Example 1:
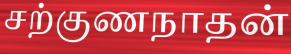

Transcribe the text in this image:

சற்குணநாதன்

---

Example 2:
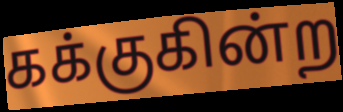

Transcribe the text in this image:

கக்குகின்ற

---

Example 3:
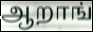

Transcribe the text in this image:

ஆறாங்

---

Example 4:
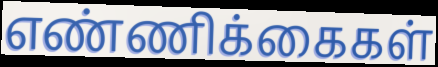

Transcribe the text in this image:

எண்ணிக்கைகள்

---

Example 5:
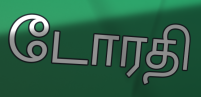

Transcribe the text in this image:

டோரதி